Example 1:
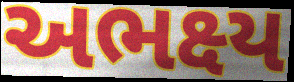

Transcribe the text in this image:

અભક્ષ્ય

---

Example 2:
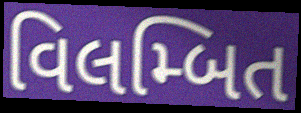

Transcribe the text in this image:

વિલમ્બિત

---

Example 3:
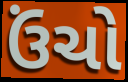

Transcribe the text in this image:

ઉંચો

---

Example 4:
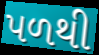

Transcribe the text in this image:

પળથી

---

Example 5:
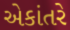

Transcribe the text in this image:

એકાંતરે